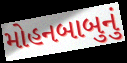
મોહનબાબુનું